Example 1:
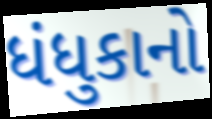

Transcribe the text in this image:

ધંધુકાનો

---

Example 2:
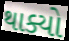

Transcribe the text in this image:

થાક્યો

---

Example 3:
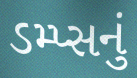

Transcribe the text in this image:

ડમ્પ્સનું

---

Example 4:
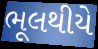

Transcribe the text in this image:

ભૂલથીયે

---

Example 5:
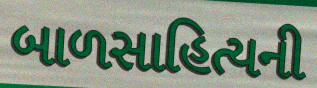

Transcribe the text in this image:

બાળસાહિત્યની